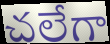
చలేగా